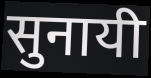
सुनायी